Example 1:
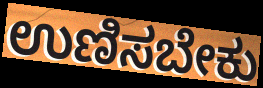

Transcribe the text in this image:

ಉಣಿಸಬೇಕು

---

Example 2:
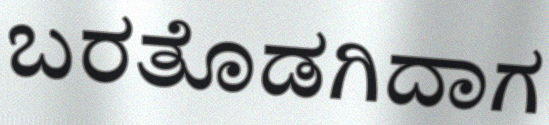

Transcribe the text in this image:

ಬರತೊಡಗಿದಾಗ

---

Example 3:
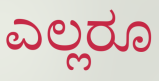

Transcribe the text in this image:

ಎಲ್ಲರೂ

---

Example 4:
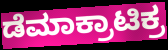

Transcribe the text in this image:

ಡೆಮಾಕ್ರಾಟಿಕ್ರ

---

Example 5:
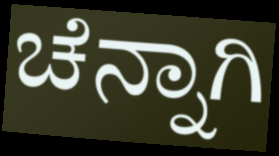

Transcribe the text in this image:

ಚೆನ್ನಾಗಿ